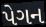
પેગન